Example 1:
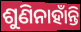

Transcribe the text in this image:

ଶୁଣିନାହାଁନ୍ତି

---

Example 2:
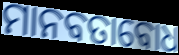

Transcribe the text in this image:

ମାନବତାବୋଧ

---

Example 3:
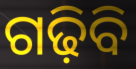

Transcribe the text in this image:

ଗଢ଼ିବି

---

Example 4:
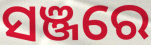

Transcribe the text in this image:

ସଞ୍ଜରେ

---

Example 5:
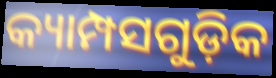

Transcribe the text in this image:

କ୍ୟାମ୍ପସଗୁଡ଼ିକ